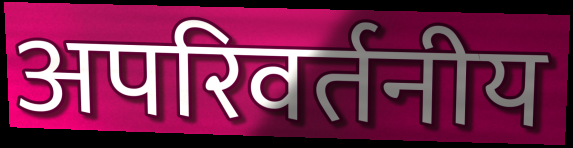
अपरिवर्तनीय